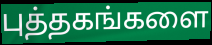
புத்தகங்களை